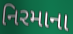
નિરમાના